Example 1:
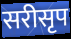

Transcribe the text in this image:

सरीसृप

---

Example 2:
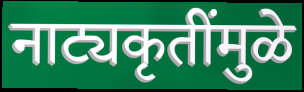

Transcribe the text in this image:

नाट्यकृतींमुळे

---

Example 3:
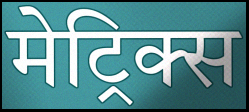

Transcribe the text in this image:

मेट्रिक्‍स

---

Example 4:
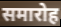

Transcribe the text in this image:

समारोह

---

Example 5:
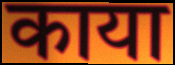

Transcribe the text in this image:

काया